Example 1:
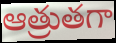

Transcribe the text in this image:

ఆత్రుతగా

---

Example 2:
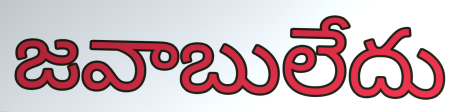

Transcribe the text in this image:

జవాబులేదు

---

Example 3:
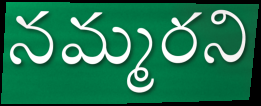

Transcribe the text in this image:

నమ్మరని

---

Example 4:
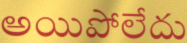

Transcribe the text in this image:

అయిపోలేదు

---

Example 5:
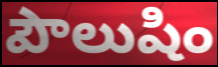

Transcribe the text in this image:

పౌలుషిం